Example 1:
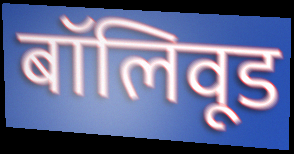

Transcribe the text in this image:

बॉलिवूड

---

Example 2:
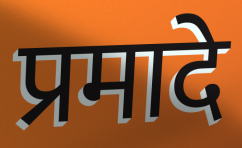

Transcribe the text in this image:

प्रमादे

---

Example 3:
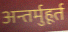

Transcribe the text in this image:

अन्तर्मुहूर्त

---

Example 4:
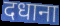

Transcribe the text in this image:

दधाना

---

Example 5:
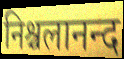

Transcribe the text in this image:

निश्चलानन्द